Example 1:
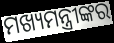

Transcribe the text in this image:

ମଖ୍ୟମନ୍ତ୍ରୀଙ୍କର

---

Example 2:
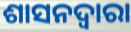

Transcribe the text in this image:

ଶାସନଦ୍ୱାରା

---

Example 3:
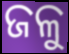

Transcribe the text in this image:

ଜଳୁ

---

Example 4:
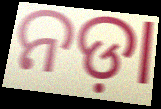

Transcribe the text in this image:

ନଡ଼ା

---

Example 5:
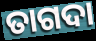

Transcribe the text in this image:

ତାଗଦା